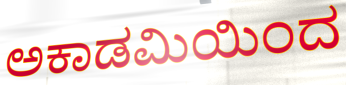
ಅಕಾಡಮಿಯಿಂದ